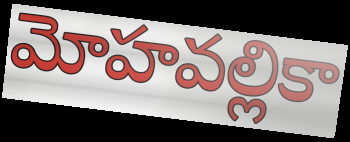
మోహవల్లికా